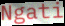
Ngati